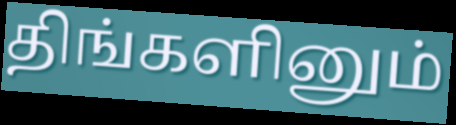
திங்களினும்